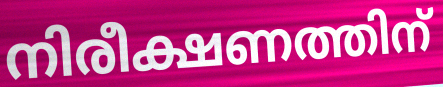
നിരീക്ഷണത്തിന്